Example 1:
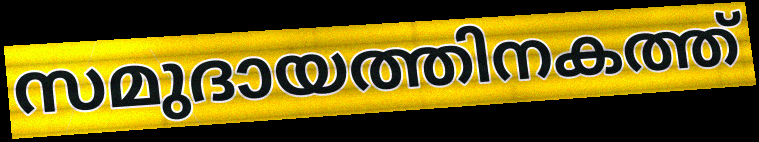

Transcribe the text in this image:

സമുദായത്തിനകത്ത്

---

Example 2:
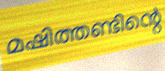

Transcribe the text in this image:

മഷിത്തണ്ടിന്റെ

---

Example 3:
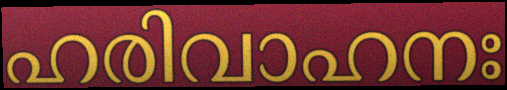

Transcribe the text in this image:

ഹരിവാഹനഃ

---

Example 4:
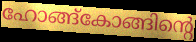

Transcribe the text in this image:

ഹോങ്ങ്കോങ്ങിന്റെ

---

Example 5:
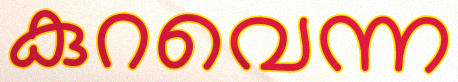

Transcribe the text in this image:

കുറവെന്ന